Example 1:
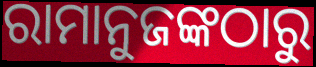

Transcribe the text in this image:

ରାମାନୁଜଙ୍କଠାରୁ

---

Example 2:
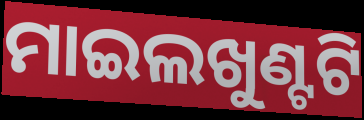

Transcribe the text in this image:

ମାଇଲଖୁଣ୍ଟଟି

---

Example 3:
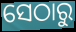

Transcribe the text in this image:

ସେଠାରୁ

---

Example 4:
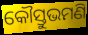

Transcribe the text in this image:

କୌସ୍ତୁଭମଣି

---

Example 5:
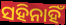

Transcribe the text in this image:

ସହିନାହିଁ